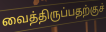
வைத்திருப்பதற்குச்